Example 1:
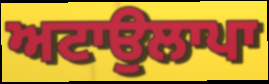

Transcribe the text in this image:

ਅਟਾਉਲਾਪਾ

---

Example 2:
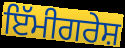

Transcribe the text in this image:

ਇੱਮੀਗਰੇਸ਼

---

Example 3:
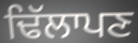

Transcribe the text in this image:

ਢਿੱਲਾਪਣ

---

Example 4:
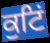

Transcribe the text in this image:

ਕੁਟਿਂ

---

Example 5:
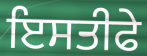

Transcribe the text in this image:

ਇਸਤੀਫੇ